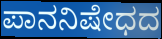
ಪಾನನಿಷೇಧದ